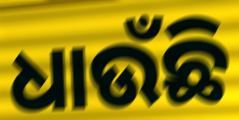
ଧାଉଁଛି